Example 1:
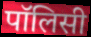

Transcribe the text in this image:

पॉलिसी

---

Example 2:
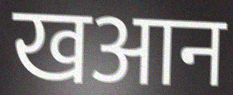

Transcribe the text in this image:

खआन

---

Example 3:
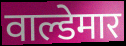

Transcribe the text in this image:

वाल्डेमार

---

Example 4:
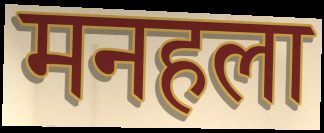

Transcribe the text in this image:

मनहला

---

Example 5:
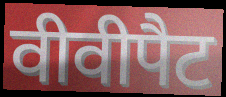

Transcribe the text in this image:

वीवीपैट